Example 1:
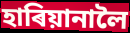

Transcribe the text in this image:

হাৰিয়ানালৈ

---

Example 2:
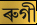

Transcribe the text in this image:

ৰুগী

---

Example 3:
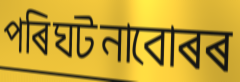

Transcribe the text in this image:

পৰিঘটনাবোৰৰ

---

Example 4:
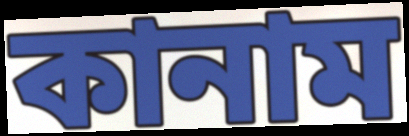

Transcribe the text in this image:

কানাম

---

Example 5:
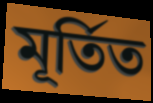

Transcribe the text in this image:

মূৰ্তিত